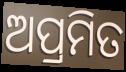
ଅପ୍ରମିତ